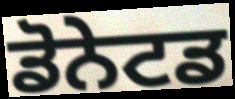
ਡੋਨੇਟਡ